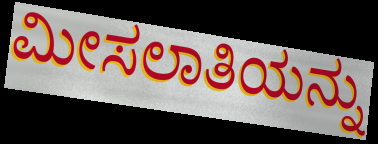
ಮೀಸಲಾತಿಯನ್ನು